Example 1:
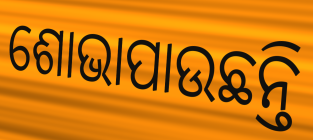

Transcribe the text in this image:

ଶୋଭାପାଉଛନ୍ତି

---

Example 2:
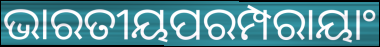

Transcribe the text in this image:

ଭାରତୀୟପରମ୍ପରାୟାଂ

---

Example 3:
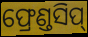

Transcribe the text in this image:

ଫ୍ରେଣ୍ଡସିପ୍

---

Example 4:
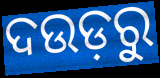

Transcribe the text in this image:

ଦଉଡ଼ରୁ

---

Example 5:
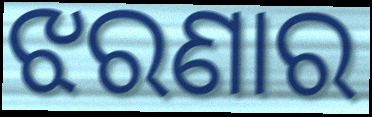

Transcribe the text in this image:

ଝରଣାର